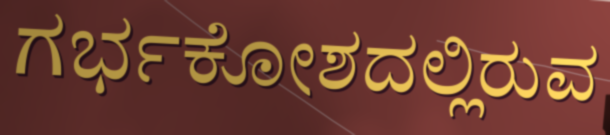
ಗರ್ಭಕೋಶದಲ್ಲಿರುವ